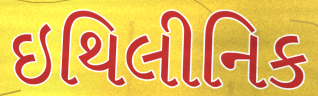
ઇથિલીનિક